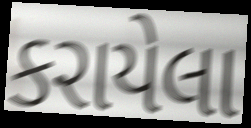
કરાયેલા